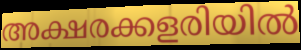
അക്ഷരക്കളരിയിൽ